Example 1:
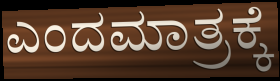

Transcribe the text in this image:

ಎಂದಮಾತ್ರಕ್ಕೆ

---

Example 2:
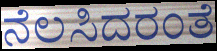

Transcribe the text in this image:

ನೆಲಸಿದರಂತೆ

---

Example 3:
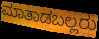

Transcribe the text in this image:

ಮಾತಾಡಬಲ್ಲರು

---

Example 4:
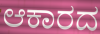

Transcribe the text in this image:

ಆಕಾರದ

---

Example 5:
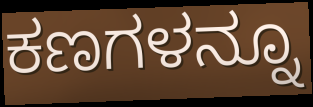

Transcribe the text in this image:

ಕಣಗಳನ್ನೂ